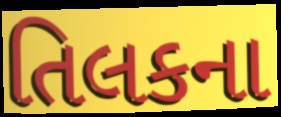
તિલકના